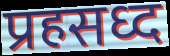
प्रहसध्द